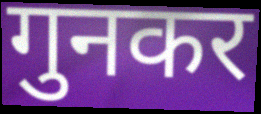
गुनकर